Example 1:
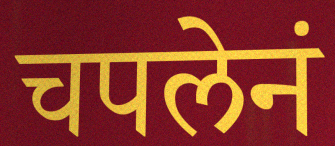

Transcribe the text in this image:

चपलेनं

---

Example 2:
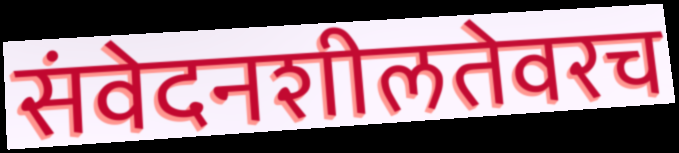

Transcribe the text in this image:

संवेदनशीलतेवरच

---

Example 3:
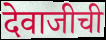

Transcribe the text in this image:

देवाजीची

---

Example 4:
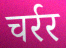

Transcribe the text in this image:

चर्रर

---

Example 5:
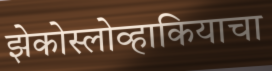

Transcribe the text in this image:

झेकोस्लोव्हाकियाचा